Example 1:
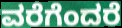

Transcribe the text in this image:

ವರೆಗೆಂದರೆ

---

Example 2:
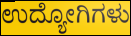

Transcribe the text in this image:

ಉದ್ಯೋಗಿಗಳು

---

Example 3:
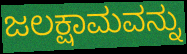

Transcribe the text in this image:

ಜಲಕ್ಷಾಮವನ್ನು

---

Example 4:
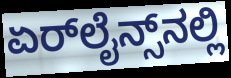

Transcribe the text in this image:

ಏರ್‌ಲೈನ್ಸ್‌ನಲ್ಲಿ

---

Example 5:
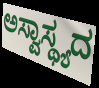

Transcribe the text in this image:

ಅಸ್ವಾಸ್ಥ್ಯದ